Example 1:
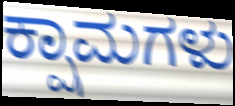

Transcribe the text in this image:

ಕ್ಷಾಮಗಳು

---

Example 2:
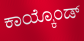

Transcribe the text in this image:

ಕಾಯ್ಕೊಂಡ್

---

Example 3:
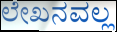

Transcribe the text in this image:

ಲೇಖನವಲ್ಲ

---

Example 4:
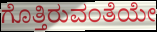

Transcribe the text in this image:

ಗೊತ್ತಿರುವಂತೆಯೇ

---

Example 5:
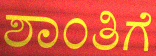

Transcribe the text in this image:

ಶಾಂತಿಗೆ